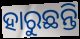
ହାରୁଛନ୍ତି